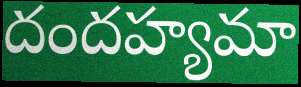
దందహ్యమా